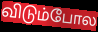
விடும்போல